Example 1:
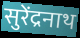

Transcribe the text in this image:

सुरेंद्रनाथ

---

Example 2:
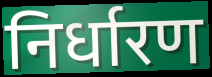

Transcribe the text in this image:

निर्धारण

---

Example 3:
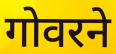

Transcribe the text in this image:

गोवरने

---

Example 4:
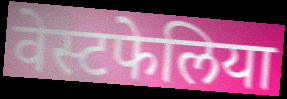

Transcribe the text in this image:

वेस्टफेलिया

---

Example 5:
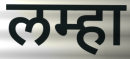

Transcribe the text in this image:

लम्हा